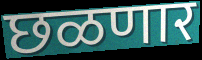
छळणार